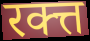
रक्त्त